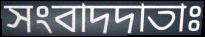
সংবাদদাতাঃ